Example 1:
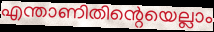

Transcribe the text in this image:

എന്താണിതിന്റെയെല്ലാം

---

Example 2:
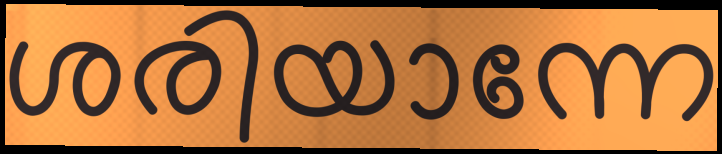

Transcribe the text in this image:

ശരിയാന്നേ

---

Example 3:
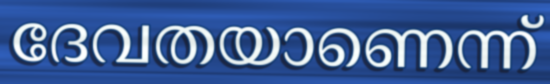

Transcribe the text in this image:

ദേവതയാണെന്ന്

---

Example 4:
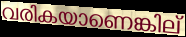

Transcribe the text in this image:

വരികയാണെങ്കില്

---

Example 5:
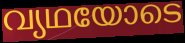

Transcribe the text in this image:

വ്യഥയോടെ